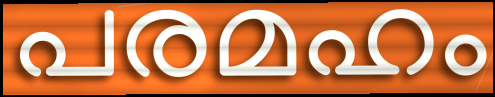
പരമഹം